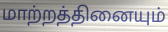
மாற்றத்தினையும்